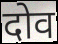
दोव